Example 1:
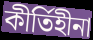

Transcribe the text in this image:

কীর্তিহীনা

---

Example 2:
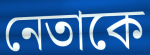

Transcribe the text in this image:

নেতাকে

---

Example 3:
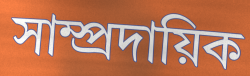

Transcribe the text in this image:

সাম্প্রদায়িক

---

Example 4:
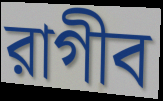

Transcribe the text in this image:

রাগীব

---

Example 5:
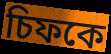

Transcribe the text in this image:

চিফকে